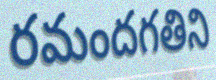
రమందగతిని